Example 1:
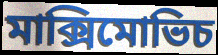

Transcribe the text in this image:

মাক্সিমোভিচ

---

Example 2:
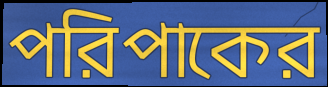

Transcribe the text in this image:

পরিপাকের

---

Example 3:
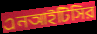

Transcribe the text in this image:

এনআইটিসির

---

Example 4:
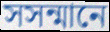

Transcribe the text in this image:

সসন্মানে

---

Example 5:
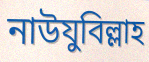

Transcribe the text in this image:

নাউযুবিল্লাহ